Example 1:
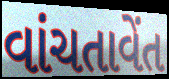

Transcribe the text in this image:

વાંચતાવેંત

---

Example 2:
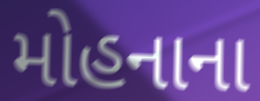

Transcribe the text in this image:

મોહનાના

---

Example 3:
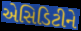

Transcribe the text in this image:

એસિડિટીને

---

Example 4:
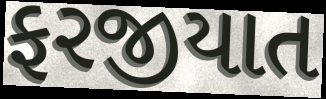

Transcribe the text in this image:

ફરજીયાત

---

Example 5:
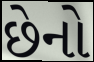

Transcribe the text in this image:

છેનો